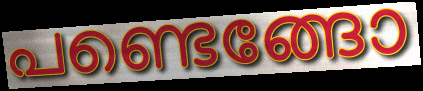
പണ്ടെങ്ങോ